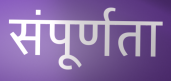
संपूर्णता